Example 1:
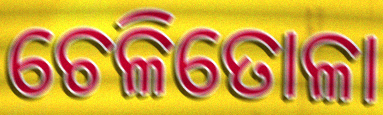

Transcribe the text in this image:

ଚେଳିତୋଳା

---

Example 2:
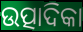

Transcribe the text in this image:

ଉତ୍ପାଦିକା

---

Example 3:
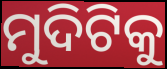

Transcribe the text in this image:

ମୁଦିଟିକୁ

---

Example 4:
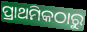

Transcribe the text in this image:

ପ୍ରାଥମିକଠାରୁ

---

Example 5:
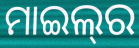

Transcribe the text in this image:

ମାଇଲ୍‍ର